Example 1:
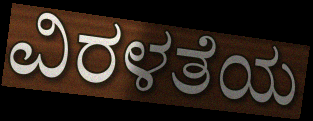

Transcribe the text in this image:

ವಿರಳತೆಯ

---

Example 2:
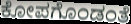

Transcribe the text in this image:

ಕೋಪಗೊಂಡಂತೆ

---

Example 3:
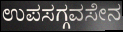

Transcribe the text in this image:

ಉಪಸಗ್ಗವಸೇನ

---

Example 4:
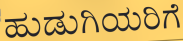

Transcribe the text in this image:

ಹುಡುಗಿಯರಿಗೆ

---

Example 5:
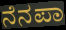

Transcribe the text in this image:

ನೆನಪಾ